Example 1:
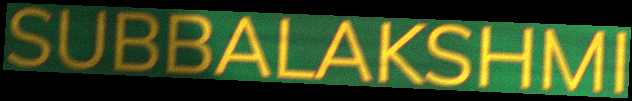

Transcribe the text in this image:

SUBBALAKSHMI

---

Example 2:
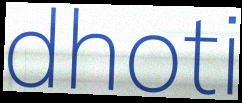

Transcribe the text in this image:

dhoti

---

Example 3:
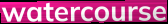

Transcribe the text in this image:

watercourse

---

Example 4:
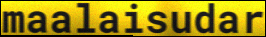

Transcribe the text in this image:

maalaisudar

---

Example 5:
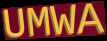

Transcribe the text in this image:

UMWA